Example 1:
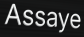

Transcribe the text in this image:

Assaye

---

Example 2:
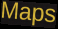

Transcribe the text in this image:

Maps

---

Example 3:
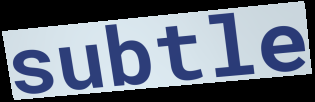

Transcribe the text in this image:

subtle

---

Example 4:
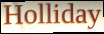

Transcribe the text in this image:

Holliday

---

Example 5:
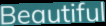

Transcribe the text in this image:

Beautiful